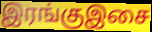
இரங்குஇசை